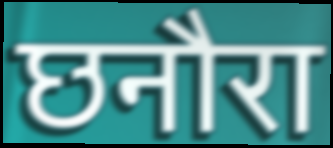
छनौरा